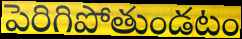
పెరిగిపోతుండటం